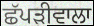
ਛੱਪੜੀਵਾਲਾ